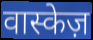
वास्केज़